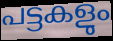
പട്ടകളും